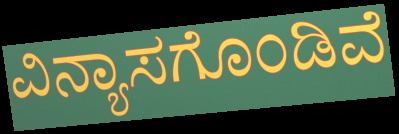
ವಿನ್ಯಾಸಗೊಂಡಿವೆ